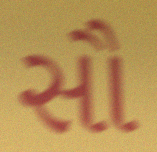
સૌ